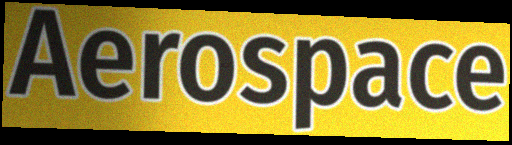
Aerospace